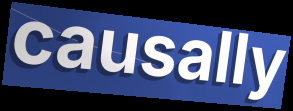
causally